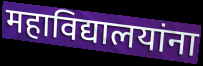
महाविद्यालयांना